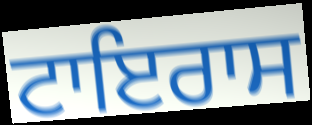
ਟਾਇਰਾਸ